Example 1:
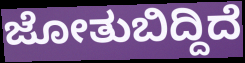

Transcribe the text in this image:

ಜೋತುಬಿದ್ದಿದೆ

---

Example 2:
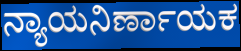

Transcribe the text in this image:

ನ್ಯಾಯನಿರ್ಣಾಯಕ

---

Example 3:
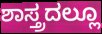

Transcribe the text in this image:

ಶಾಸ್ತ್ರದಲ್ಲೂ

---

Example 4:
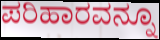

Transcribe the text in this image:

ಪರಿಹಾರವನ್ನೂ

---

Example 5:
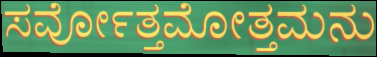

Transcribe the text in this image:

ಸರ್ವೋತ್ತಮೋತ್ತಮನು